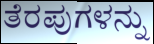
ತೆರಪುಗಳನ್ನು